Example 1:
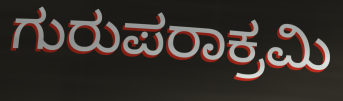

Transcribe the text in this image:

ಗುರುಪರಾಕ್ರಮಿ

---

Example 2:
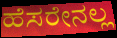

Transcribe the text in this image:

ಹೆಸರೇನಲ್ಲ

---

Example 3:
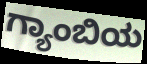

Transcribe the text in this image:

ಗ್ಯಾಂಬಿಯ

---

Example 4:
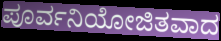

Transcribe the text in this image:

ಪೂರ್ವನಿಯೋಜಿತವಾದ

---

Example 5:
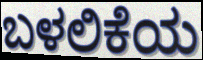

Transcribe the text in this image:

ಬಳಲಿಕೆಯ